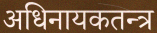
अधिनायकतन्त्र